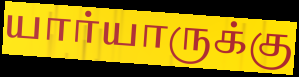
யார்யாருக்கு